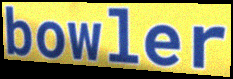
bowler